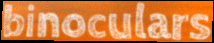
binoculars